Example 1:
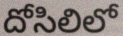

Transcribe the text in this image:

దోసిలిలో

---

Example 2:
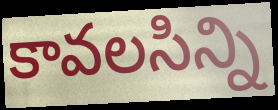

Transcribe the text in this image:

కావలసిన్ని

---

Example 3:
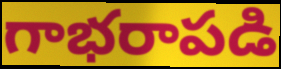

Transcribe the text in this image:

గాభరాపడి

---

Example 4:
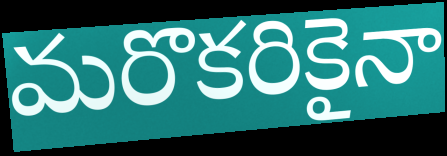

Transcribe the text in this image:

మరొకరికైనా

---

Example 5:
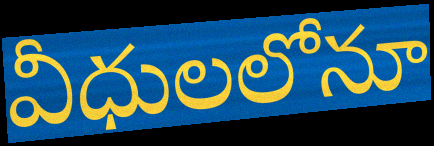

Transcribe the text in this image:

వీధులలోనూ